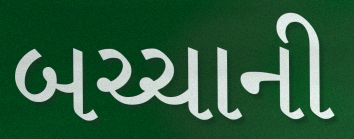
બચ્ચાની